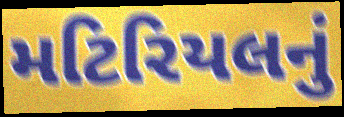
મટિરિયલનું